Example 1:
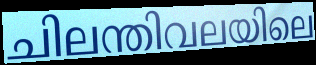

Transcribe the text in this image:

ചിലന്തിവലയിലെ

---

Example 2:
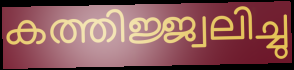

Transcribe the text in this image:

കത്തിജ്ജ്വലിച്ചു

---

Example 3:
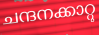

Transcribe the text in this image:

ചന്ദനക്കാറ്റു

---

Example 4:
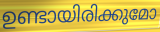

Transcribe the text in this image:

ഉണ്ടായിരിക്കുമോ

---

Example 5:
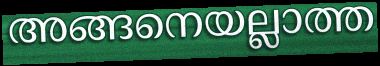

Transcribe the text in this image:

അങ്ങനെയല്ലാത്ത